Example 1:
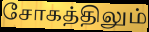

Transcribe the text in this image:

சோகத்திலும்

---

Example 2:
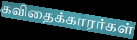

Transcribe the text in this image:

கவிதைக்காரர்கள்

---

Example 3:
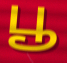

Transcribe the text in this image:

பூ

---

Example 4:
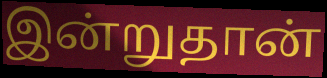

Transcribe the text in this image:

இன்றுதான்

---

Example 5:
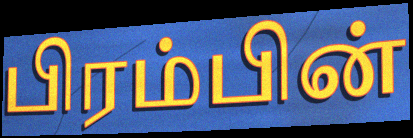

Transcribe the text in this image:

பிரம்பின்